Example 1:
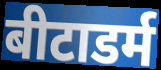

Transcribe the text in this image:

बीटाडर्म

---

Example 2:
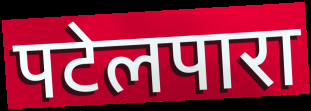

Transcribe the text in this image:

पटेलपारा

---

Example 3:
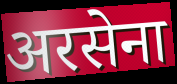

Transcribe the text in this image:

अरसेना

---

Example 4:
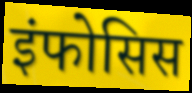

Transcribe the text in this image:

इंफोसिस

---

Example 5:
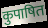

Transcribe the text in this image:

कुपाषित